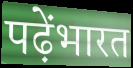
पढ़ेंभारत